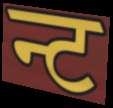
न्ट